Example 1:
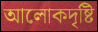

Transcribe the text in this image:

আলোকদৃষ্টি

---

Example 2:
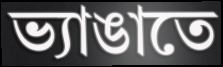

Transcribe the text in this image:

ভ্যাঙাতে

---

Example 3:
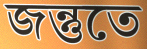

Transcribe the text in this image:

জন্তুতে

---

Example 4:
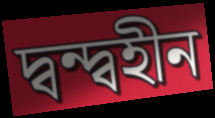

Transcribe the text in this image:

দ্বন্দ্বহীন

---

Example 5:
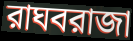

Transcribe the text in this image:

রাঘবরাজা